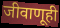
जीवाणूही